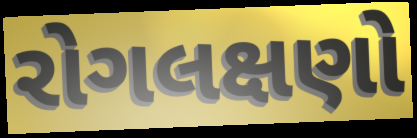
રોગલક્ષણો